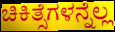
ಚಿಕಿತ್ಸೆಗಳನ್ನೆಲ್ಲ